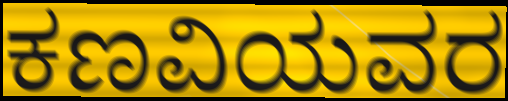
ಕಣವಿಯವರ